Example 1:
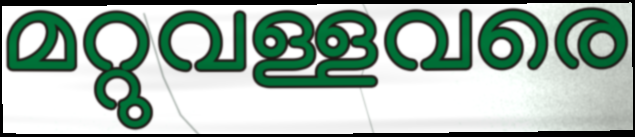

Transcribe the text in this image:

മറ്റുവള്ളവരെ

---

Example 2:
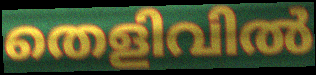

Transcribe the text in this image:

തെളിവിൽ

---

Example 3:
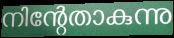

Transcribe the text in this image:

നിന്റേതാകുന്നു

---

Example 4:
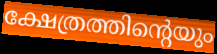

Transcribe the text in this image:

ക്ഷേത്രത്തിന്റെയും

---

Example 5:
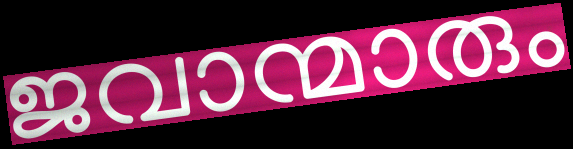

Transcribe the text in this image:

ജവാന്മാരും